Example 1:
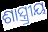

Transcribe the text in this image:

ଶାସ୍ତ୍ର୍ରୀୟ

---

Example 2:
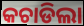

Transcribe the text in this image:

କଚାଡିଲା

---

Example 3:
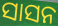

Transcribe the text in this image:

ସାସନ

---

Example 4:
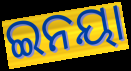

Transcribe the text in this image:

ଇନୟା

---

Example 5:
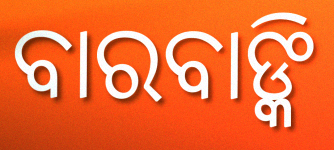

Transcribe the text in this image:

ବାରବାଙ୍କି